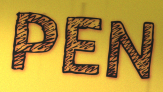
PEN